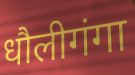
धौलीगंगा